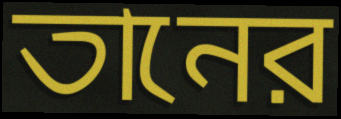
তানের